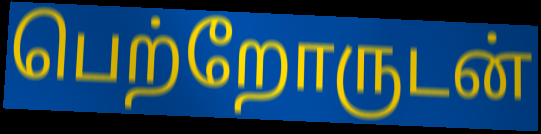
பெற்றோருடன்